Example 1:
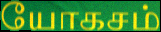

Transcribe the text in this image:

யோகசம்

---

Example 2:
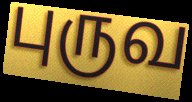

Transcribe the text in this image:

புருவ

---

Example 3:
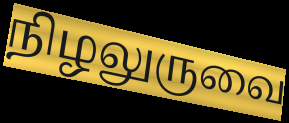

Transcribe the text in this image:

நிழலுருவை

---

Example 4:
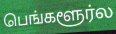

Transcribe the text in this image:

பெங்களூர்ல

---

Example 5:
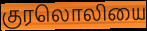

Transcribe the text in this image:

குரலொலியை